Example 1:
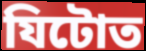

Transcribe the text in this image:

যিটোত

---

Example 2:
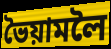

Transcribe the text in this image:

ভৈয়ামলৈ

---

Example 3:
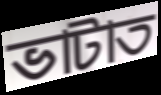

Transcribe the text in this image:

ভাটাত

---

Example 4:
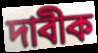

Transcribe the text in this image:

দাবীক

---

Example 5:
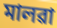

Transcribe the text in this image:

মালৱা